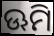
ଊମି